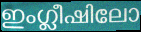
ഇംഗ്ലീഷിലോ